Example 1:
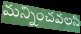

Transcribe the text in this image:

మన్నించవలసి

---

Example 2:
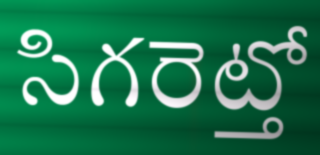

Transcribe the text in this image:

సిగరెట్తో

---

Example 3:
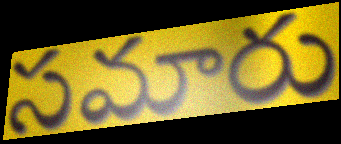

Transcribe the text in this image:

సమారు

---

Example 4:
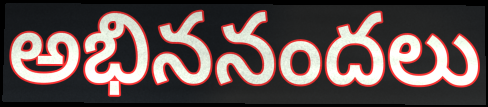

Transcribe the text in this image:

అభిననందలు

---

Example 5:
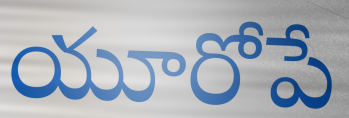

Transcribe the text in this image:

యూరోపే